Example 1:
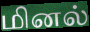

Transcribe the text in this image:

மினல்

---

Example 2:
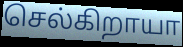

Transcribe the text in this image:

செல்கிறாயா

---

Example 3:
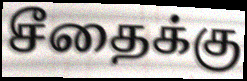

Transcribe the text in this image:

சீதைக்கு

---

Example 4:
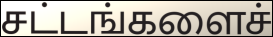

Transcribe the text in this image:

சட்டங்களைச்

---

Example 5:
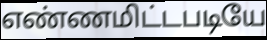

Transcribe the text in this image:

எண்ணமிட்டபடியே